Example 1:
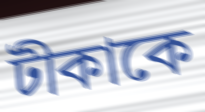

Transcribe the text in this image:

টীকাকে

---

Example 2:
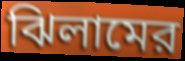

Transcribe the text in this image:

ঝিলামের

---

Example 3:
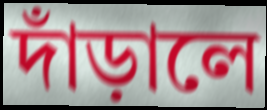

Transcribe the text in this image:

দাঁড়ালে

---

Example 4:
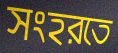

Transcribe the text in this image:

সংহরতে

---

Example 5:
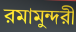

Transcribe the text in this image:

রমামুন্দরী